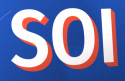
SOI